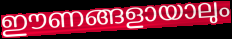
ഈണങ്ങളായാലും